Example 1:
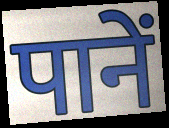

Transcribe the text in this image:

पानें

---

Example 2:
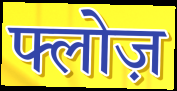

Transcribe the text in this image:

फ्लोज़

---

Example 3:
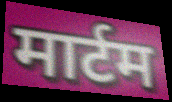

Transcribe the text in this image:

मार्टम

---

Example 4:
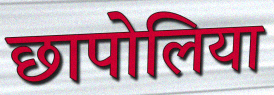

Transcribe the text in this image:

छापोलिया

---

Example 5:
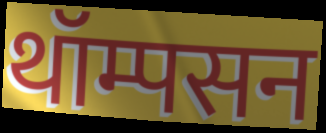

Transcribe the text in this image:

थॉम्पसन